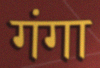
गंगा